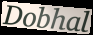
Dobhal